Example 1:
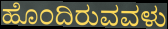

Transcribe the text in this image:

ಹೊಂದಿರುವವಳು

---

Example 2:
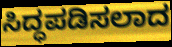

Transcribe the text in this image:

ಸಿದ್ಧಪಡಿಸಲಾದ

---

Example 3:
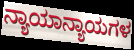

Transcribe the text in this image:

ನ್ಯಾಯಾನ್ಯಾಯಗಳ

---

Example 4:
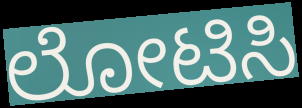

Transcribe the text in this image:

ಲೋಟಿಸಿ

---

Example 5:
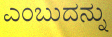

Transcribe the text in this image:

ಎಂಬುದನ್ನು